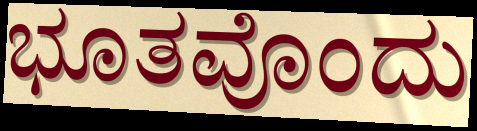
ಭೂತವೊಂದು